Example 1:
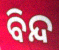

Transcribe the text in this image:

ବିନ୍ଦ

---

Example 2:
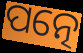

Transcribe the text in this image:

ପତ୍ନେ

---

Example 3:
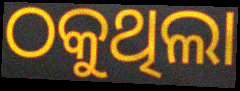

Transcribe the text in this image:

ଠକୁଥିଲା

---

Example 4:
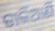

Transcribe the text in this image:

ଡାକିଆଣି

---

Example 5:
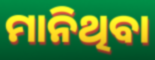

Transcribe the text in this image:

ମାନିଥିବା